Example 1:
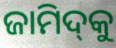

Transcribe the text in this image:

ଜାମିଦ୍‌କୁ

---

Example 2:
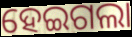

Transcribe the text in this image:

ହେଇଗଲା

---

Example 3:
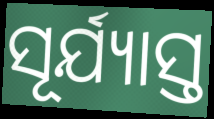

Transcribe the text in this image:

ସୂର୍ଯ୍ୟାସ୍ତ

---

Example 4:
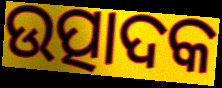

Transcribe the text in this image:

ଉତ୍ପାଦକ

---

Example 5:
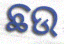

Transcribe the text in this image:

ଛଉ